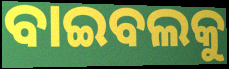
ବାଇବଲକୁ